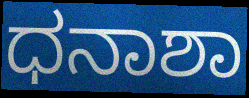
ಧನಾಶಾ